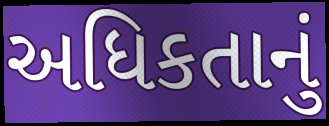
અધિકતાનું